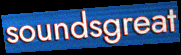
soundsgreat